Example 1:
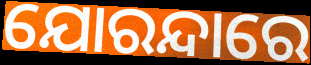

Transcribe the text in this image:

ଯୋରନ୍ଦାରେ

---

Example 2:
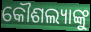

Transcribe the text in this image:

କୌଶଲ୍ୟାଙ୍କୁ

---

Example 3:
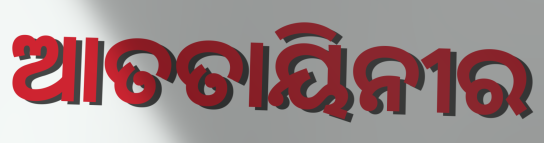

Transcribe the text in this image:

ଆତତାୟିନୀର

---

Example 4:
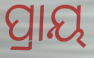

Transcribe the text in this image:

ପ୍ରାୟ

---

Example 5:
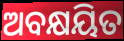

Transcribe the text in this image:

ଅବକ୍ଷୟିତ